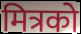
मित्रको